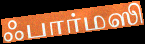
ஃபார்மஸி